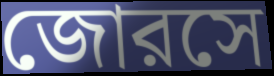
জোরসে